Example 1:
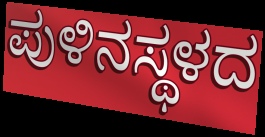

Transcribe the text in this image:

ಪುಳಿನಸ್ಥಳದ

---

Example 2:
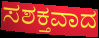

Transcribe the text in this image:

ಸಶಕ್ತವಾದ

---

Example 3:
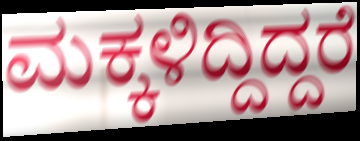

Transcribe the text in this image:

ಮಕ್ಕಳಿದ್ದಿದ್ದರೆ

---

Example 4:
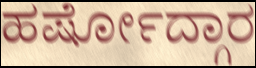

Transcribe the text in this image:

ಹರ್ಷೋದ್ಗಾರ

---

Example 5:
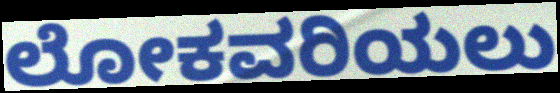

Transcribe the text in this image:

ಲೋಕವರಿಯಲು